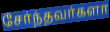
சேர்ந்தவர்களா